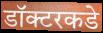
डॉक्टरकडे